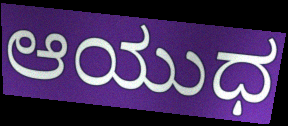
ಆಯುಧ